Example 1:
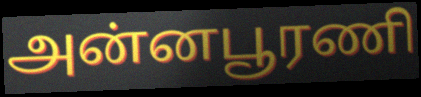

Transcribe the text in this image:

அன்னபூரணி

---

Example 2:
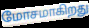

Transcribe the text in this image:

மோசமாகிறது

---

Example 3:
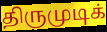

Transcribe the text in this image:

திருமுடிக்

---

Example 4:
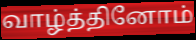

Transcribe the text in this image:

வாழ்த்தினோம்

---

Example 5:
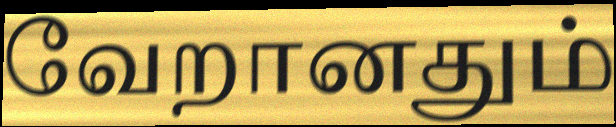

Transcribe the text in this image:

வேறானதும்